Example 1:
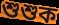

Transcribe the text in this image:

শুশুক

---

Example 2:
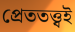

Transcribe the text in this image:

প্রেততত্ত্বই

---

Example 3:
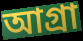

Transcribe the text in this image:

আগ্রা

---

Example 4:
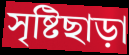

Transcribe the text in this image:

সৃষ্টিছাড়া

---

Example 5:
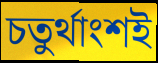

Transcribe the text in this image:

চতুর্থাংশই